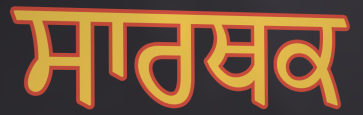
ਸਾਰਥਕ